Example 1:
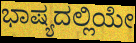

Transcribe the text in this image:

ಭಾಷ್ಯದಲ್ಲಿಯೇ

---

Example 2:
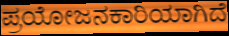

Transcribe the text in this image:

ಪ್ರಯೋಜನಕಾರಿಯಾಗಿದೆ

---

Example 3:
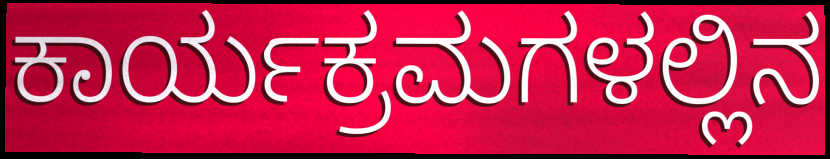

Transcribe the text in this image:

ಕಾರ್ಯಕ್ರಮಗಳಲ್ಲಿನ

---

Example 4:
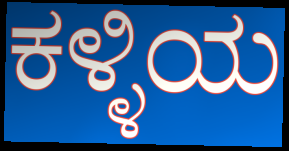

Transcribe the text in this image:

ಕಳ್ಳಿಯ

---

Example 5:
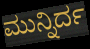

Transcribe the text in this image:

ಮುನ್ನಿರ್ದ